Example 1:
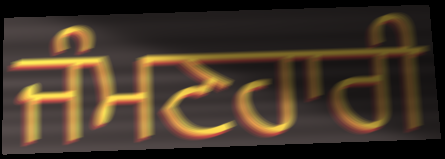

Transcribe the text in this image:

ਜੰਮਣਹਾਰੀ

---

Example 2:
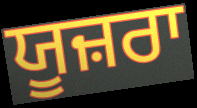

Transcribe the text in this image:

ਯੂਜ਼ਰਾ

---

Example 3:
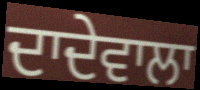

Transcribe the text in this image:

ਦਾਦੇਵਾਲਾ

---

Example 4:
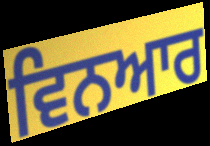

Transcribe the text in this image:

ਵਿਨਆਰ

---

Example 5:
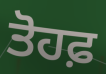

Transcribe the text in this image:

ਤੋਹਫ਼